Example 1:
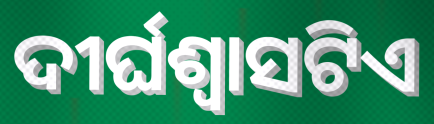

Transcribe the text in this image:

ଦୀର୍ଘଶ୍ୱାସଟିଏ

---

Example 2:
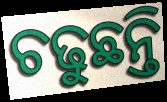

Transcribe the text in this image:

ଚଢୁଛନ୍ତି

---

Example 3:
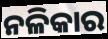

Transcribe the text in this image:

ନଳିକାର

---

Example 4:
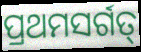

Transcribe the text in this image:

ପ୍ରଥମସର୍ଗତ୍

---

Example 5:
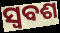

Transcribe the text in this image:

ସ୍ଵବଶ